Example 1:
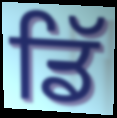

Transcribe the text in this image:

ਡਿੱ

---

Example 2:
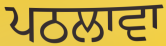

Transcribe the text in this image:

ਪਠਲਾਵਾ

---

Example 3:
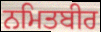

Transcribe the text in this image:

ਨਮਿਤਬੀਰ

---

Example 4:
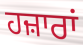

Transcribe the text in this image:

ਹਜ਼ਾਰਾਂ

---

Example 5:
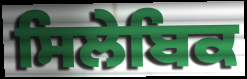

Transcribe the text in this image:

ਸਿਲੇਬਿਕ